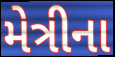
મેત્રીના